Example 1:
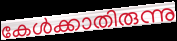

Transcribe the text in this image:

കേൾക്കാതിരുന്നു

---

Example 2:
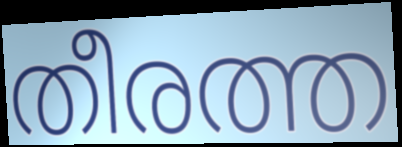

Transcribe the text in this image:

തീരത്ത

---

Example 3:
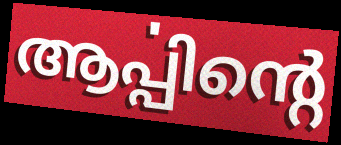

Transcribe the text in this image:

ആൎപ്പിന്റെ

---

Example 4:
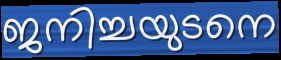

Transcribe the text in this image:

ജനിച്ചയുടനെ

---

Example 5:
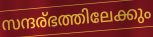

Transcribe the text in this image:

സന്ദര്ഭത്തിലേക്കും